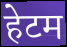
हेटम